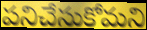
పనిచేసుకోమని